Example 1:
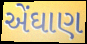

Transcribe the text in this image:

એંઘાણ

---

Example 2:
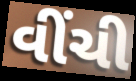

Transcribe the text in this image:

વીંચી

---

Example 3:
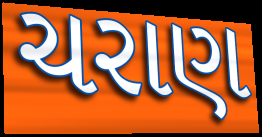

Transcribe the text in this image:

ચરાણ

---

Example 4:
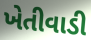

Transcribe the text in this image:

ખેતીવાડી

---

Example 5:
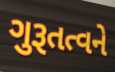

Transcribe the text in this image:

ગુરૂતત્વને